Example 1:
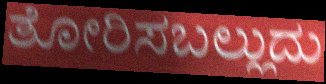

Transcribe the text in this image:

ತೋರಿಸಬಲ್ಲುದು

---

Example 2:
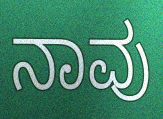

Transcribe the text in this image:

ನಾವು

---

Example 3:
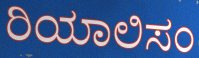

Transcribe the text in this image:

ರಿಯಾಲಿಸಂ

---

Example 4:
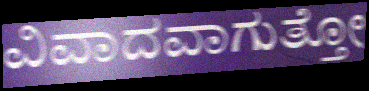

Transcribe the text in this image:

ವಿವಾದವಾಗುತ್ತೋ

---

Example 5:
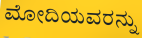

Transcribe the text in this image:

ಮೋದಿಯವರನ್ನು